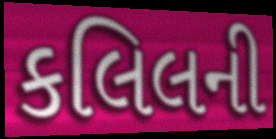
કલિલની